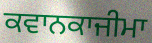
ਕਵਾਨਕਾਜੀਮਾ